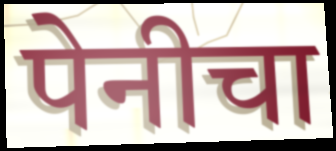
पेनीचा